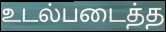
உடல்படைத்த